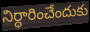
నిర్ధారించేందుకు